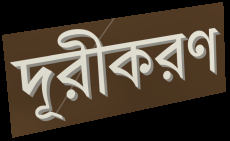
দূরীকরণ